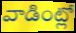
వాడింట్లో